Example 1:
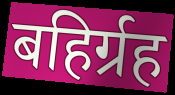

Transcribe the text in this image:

बहिर्ग्रह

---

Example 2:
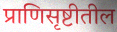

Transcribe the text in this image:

प्राणिसृष्टीतील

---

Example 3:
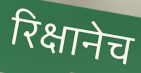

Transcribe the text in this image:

रिक्षानेच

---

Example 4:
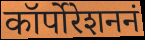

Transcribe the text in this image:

कॉर्पोरेशननं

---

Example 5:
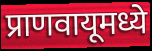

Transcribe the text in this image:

प्राणवायूमध्ये